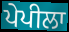
ਪੇਪੀਲਾ